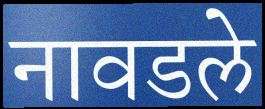
नावडले